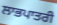
ਲਾਭਪਾਤਰੀ